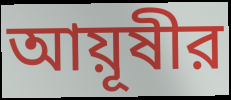
আয়ূষীর